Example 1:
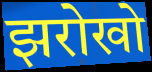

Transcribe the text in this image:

झरोखो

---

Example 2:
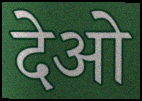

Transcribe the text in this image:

देओ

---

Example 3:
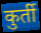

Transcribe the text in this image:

कुर्ती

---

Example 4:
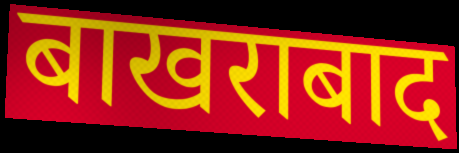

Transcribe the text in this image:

बाखराबाद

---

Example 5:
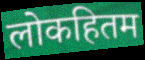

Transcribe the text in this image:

लोकहितम